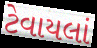
ટેવાયલાં